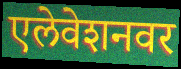
एलेवेशनवर